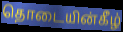
தொடையின்கீழ்